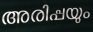
അരിപ്പയും